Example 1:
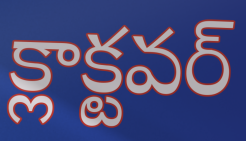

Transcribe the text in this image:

క్లాక్టవర్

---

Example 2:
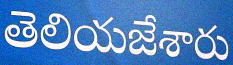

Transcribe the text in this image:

తెలియజేశారు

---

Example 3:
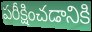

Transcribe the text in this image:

పరీక్షించడానికి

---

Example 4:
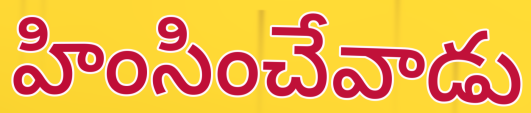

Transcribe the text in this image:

హింసించేవాడు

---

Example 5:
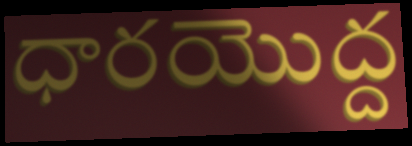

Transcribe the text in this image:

ధారయొద్ద